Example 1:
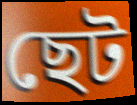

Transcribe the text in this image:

ছেট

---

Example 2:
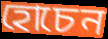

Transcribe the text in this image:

হোচেন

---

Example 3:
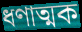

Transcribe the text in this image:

ধণাত্মক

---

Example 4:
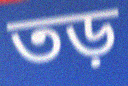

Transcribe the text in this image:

তড়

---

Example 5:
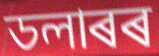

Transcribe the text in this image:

ডলাৰৰ